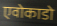
एवोकाडो